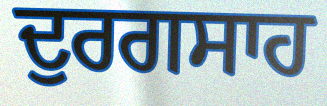
ਦੁਰਗਸਾਹ